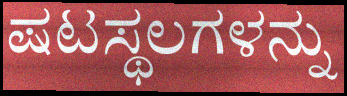
ಷಟಸ್ಥಲಗಳನ್ನು